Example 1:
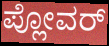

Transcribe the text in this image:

ಪ್ಲೋವರ್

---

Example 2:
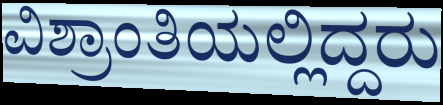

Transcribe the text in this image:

ವಿಶ್ರಾಂತಿಯಲ್ಲಿದ್ದರು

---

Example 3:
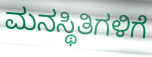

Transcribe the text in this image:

ಮನಸ್ಥಿತಿಗಳಿಗೆ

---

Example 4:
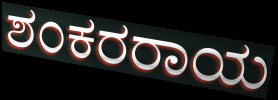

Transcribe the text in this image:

ಶಂಕರರಾಯ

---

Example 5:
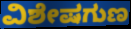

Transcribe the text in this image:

ವಿಶೇಷಗುಣ